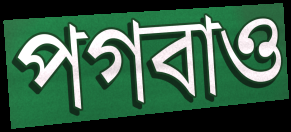
পগবাও